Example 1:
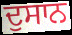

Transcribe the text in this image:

ਦੁਸਾਨ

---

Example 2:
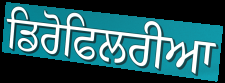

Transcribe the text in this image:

ਡਿਰੋਫਿਲਰੀਆ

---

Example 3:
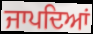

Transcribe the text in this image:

ਜਾਪਦਿਆਂ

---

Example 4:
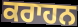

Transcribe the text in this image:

ਕਰਾਹਨ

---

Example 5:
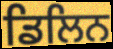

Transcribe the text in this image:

ਡਿਲਿਨ